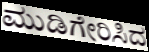
ಮುಡಿಗೇರಿಸಿದ